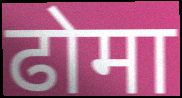
ढोमा